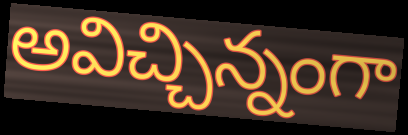
అవిచ్చిన్నంగా